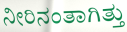
ನೀರಿನಂತಾಗಿತ್ತು